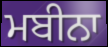
ਮਬੀਨਾ